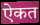
ऐकत